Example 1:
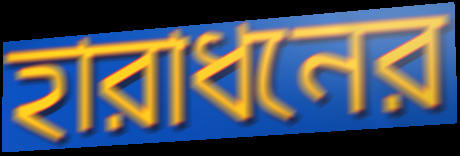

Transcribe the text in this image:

হারাধনের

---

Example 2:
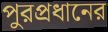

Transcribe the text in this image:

পুরপ্রধানের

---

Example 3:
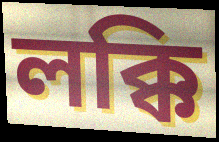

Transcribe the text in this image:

লক্কি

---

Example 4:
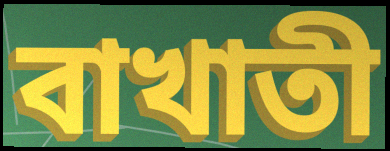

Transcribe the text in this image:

বাখাতী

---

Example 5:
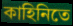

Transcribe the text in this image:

কাহিনিতে